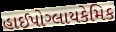
હાઈપોગ્લાયકેમિક